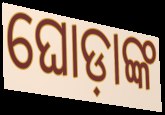
ଘୋଡ଼ାଙ୍କ